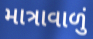
માત્રાવાળું